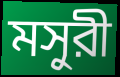
মসুরী